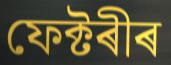
ফেক্টৰীৰ